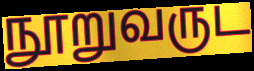
நூறுவருட